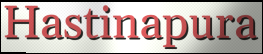
Hastinapura